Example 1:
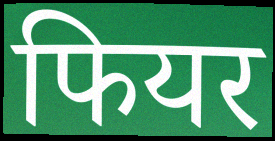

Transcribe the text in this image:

फियर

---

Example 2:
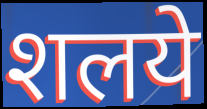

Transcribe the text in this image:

शलये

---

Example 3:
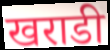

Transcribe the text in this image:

खराडी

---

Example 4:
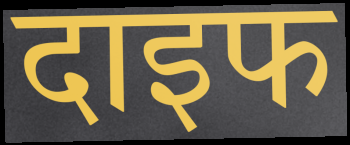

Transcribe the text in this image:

दाइफ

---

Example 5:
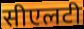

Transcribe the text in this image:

सीएलटी